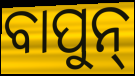
ବାପୁନ୍